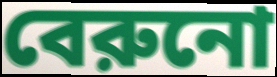
বেরুনো